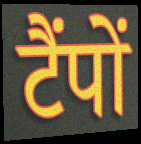
टैंपों